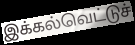
இக்கல்வெட்டுச்